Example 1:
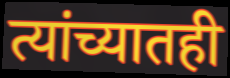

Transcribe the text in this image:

त्यांच्यातही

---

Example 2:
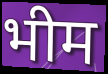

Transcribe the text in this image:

भीम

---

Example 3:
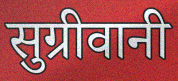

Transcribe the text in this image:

सुग्रीवानी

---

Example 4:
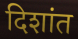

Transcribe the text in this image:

दिशांत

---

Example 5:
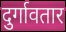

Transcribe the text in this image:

दुर्गावतार